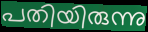
പതിയിരുന്നു